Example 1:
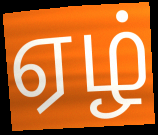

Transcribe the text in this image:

ஏழ்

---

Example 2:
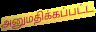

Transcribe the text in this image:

அனுமதிக்கப்பட்ட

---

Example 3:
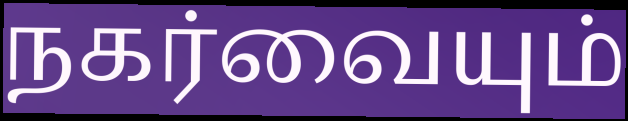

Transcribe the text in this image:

நகர்வையும்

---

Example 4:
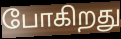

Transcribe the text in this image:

போகிறது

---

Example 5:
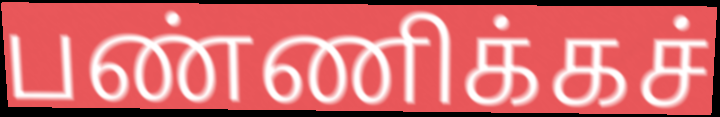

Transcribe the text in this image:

பண்ணிக்கச்